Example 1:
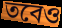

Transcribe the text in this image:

তবেও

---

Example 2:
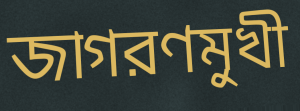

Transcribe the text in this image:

জাগরণমুখী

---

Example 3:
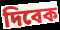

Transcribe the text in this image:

দিবেক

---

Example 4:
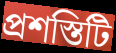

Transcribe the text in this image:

প্রশস্তিটি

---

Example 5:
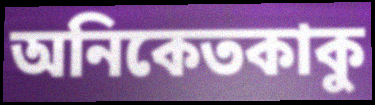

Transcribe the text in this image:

অনিকেতকাকু